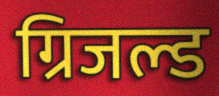
ग्रिजल्ड